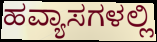
ಹವ್ಯಾಸಗಳಲ್ಲಿ